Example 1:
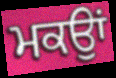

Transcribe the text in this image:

ਮਕਉਾਂ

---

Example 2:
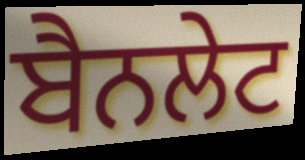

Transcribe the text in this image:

ਬੈਨਲੇਟ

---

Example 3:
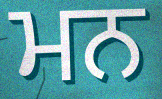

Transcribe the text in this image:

ਮਨ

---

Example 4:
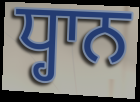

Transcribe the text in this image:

ਧ੍ਹਾਨ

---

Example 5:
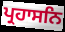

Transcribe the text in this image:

ਪ੍ਰਹਾਸਨਿ